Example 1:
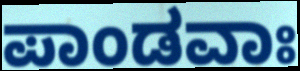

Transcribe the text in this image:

ಪಾಂಡವಾಃ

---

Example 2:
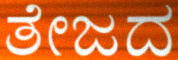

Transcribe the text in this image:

ತೇಜದ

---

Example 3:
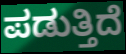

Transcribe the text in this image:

ಪಡುತ್ತಿದೆ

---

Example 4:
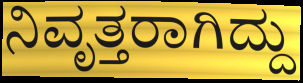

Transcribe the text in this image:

ನಿವೃತ್ತರಾಗಿದ್ದು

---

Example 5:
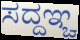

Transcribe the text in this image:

ಸದ್ದಞ್ಚ